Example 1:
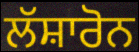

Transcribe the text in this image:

ਲੱਸ਼ਾਰੋਨ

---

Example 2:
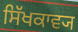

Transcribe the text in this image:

ਸਿੱਖਕਾਵ੍ਯ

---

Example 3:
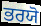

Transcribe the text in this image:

ਭਰਯੋ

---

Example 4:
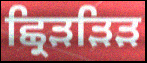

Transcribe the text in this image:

ਛ੍ਰਿੜੜਿੜ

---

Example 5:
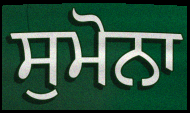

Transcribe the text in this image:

ਸੁਮੋਨਾ